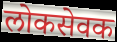
लोकसेवक